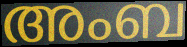
അംബ